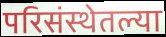
परिसंस्थेतल्या